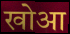
खोआ